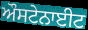
ਔਸਟੇਨਾਈਟ